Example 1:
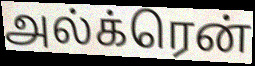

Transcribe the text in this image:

அல்க்ரென்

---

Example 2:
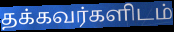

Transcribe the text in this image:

தக்கவர்களிடம்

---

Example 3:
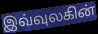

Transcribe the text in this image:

இவ்வுலகின்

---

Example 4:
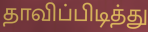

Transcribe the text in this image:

தாவிப்பிடித்து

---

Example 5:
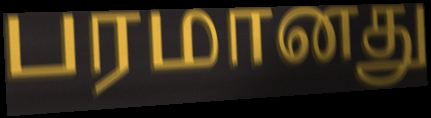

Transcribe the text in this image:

பரமானது